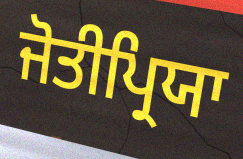
ਜੋਤੀਪ੍ਰਿਯਾ